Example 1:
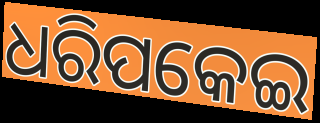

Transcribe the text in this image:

ଧରିପକେଇ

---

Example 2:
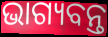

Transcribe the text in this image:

ଭାଗ୍ୟବନ୍ତ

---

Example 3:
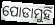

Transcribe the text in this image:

ପୋଡାମୁହିଁ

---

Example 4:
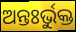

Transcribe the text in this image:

ଅନ୍ତଃର୍ଭୁକ୍ତ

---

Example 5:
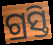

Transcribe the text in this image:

ଗ୍ରସ୍ତି